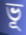
ভূ